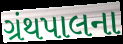
ગ્રંથપાલના